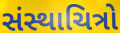
સંસ્થાચિત્રો